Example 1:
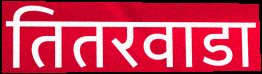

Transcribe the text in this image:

तितरवाडा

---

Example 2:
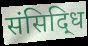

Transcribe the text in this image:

संसिद्धि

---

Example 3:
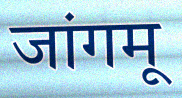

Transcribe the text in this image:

जांगमू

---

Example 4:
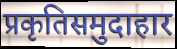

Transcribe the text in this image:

प्रकृतिसमुदाहार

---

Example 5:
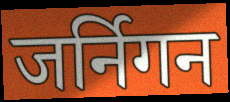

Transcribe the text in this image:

जर्निगन